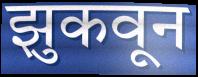
झुकवून